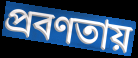
প্রবণতায়